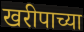
खरीपाच्या